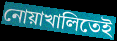
নোয়াখালিতেই